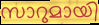
സാറുമായി